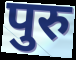
पुरु